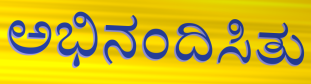
ಅಭಿನಂದಿಸಿತು